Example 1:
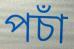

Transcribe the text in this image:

পচাঁ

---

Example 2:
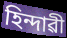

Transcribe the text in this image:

হিন্দাৱী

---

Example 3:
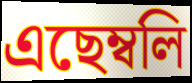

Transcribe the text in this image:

এছেম্বলি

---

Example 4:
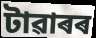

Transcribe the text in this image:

টাৱাৰৰ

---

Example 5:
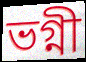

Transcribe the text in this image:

ভগ্নী